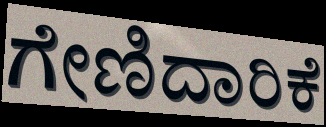
ಗೇಣಿದಾರಿಕೆ